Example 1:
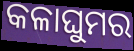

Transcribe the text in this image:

କଳାଘୁମର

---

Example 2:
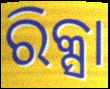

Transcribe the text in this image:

ରିକ୍ସା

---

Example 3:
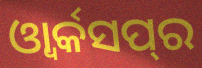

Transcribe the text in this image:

ଓ୍ୱାର୍କସପ୍‌ର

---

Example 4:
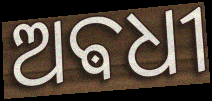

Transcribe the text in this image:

ଅଵଧୀ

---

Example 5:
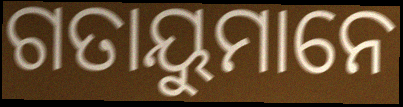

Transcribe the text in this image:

ଗତାୟୁମାନେ